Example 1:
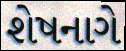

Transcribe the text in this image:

શેષનાગે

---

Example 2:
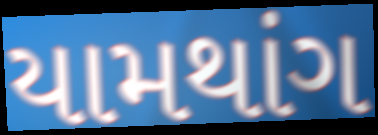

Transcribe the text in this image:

યામથાંગ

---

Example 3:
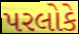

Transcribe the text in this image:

પરલોકે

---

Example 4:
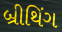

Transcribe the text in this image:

બ્રીથિંગ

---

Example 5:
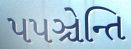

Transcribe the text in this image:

પપઞ્ચેન્તિ